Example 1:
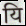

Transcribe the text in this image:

यि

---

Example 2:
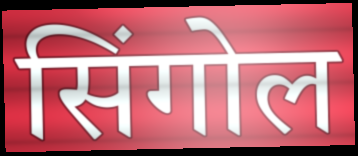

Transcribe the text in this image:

सिंगोल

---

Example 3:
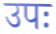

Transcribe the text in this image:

उपः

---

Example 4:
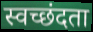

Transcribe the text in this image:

स्वच्छंदता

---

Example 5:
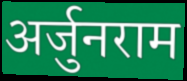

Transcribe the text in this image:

अर्जुनराम